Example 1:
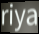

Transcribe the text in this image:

riya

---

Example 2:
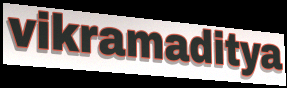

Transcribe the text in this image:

vikramaditya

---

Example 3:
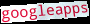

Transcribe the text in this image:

googleapps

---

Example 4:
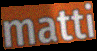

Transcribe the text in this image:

matti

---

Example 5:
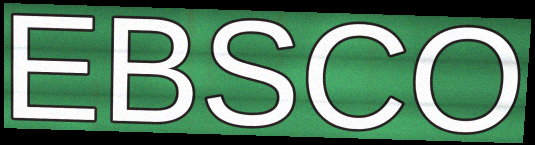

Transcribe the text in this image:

EBSCO